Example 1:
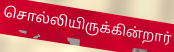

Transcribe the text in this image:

சொல்லியிருக்கின்றார்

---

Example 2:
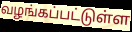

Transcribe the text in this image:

வழங்கப்பட்டுள்ள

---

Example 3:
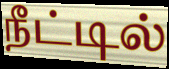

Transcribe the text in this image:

நீட்டில்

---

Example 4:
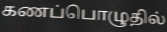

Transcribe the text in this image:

கணப்பொழுதில்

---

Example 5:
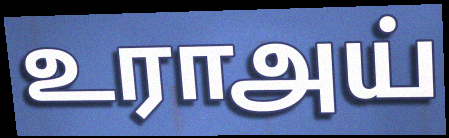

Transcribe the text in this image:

உராஅய்